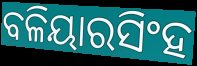
ବଳିୟାରସିଂହ